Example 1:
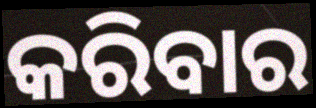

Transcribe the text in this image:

କରିବାର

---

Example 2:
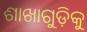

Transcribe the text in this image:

ଶାଖାଗୁଡ଼ିକୁ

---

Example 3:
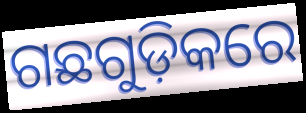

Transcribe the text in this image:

ଗଛଗୁଡ଼ିକରେ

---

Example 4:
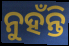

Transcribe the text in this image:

ନୁହଁନ୍ତି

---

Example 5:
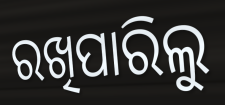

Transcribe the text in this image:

ରଖିପାରିଲୁ